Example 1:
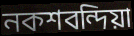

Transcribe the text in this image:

নকশবন্দিয়া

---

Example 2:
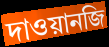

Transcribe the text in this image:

দাওয়ানজি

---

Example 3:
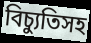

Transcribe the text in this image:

বিচ্যুতিসহ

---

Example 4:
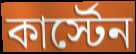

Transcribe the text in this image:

কার্স্টেন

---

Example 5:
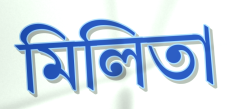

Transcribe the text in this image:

মিলিতা